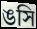
ঙসি